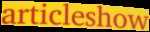
articleshow